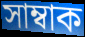
সাম্বাক